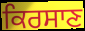
ਕਿਰਸਾਣ